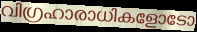
വിഗ്രഹാരാധികളോടോ